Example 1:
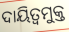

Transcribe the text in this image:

ଦାୟିତ୍ୱମୁକ୍ତ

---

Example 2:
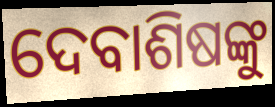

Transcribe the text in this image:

ଦେବାଶିଷଙ୍କୁ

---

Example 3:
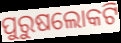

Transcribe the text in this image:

ପୁରୁଷଲୋକଟି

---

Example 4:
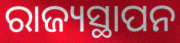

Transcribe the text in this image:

ରାଜ୍ୟସ୍ଥାପନ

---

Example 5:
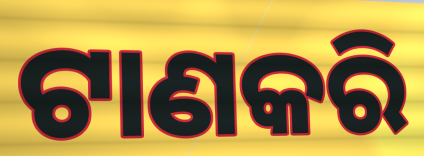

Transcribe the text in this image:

ଟାଣକରି